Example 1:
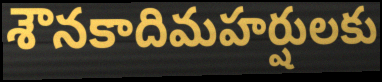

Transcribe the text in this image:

శౌనకాదిమహర్షులకు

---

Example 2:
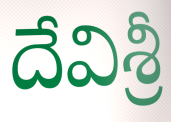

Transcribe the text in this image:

దేవిశ్రీ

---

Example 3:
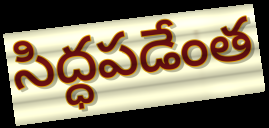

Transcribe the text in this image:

సిద్ధపడేంత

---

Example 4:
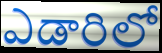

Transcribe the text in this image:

ఎడారిలో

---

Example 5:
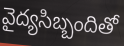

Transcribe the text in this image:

వైద్యసిబ్బందితో